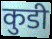
कुडी